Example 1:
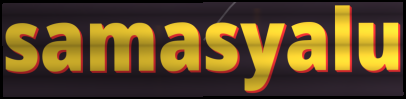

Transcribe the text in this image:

samasyalu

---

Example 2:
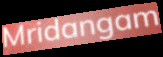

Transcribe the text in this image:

Mridangam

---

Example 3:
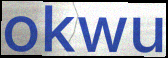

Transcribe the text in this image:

okwu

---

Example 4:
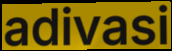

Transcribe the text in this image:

adivasi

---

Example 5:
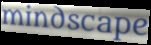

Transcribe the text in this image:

mindscape